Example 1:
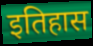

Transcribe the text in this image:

इतिहास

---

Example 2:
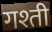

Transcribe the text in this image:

गश्ती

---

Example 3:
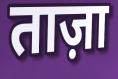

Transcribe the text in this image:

ताज़ा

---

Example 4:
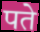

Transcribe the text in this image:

पते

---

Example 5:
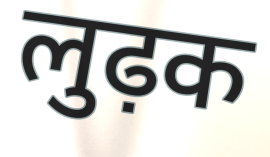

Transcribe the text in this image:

लुढ़क